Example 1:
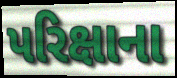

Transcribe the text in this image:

પરિક્ષાના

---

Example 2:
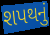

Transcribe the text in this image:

શપથનું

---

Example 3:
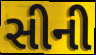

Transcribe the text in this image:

સીની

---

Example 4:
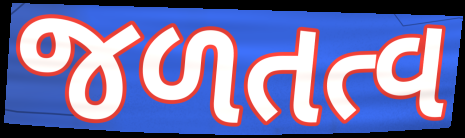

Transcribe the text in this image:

જળતત્વ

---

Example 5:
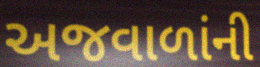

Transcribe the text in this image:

અજવાળાંની